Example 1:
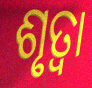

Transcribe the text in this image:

ଶୃତ୍ୱା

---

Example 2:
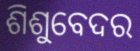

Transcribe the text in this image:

ଶିଶୁବେଦର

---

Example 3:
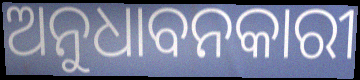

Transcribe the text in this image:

ଅନୁଧାବନକାରୀ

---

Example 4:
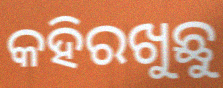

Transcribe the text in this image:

କହିରଖୁଛୁ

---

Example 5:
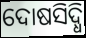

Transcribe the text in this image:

ଦୋଷସିଦ୍ଧି